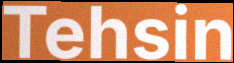
Tehsin